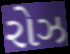
રોઝ